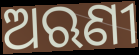
ଅଋଣୀ